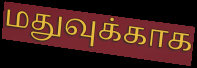
மதுவுக்காக